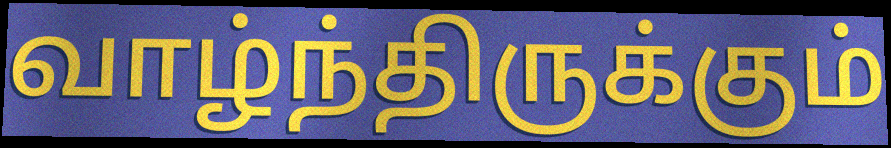
வாழ்ந்திருக்கும்